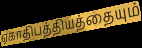
ஏகாதிபத்தியத்தையும்